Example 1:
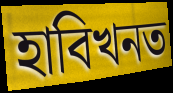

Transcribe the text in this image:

হাবিখনত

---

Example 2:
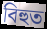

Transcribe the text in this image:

বিহুত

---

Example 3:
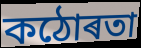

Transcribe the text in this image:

কঠোৰতা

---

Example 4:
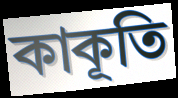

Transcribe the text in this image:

কাকূতি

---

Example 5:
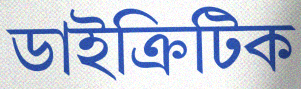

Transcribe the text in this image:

ডাইক্ৰিটিক